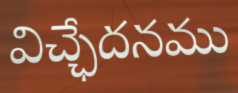
విచ్ఛేదనము